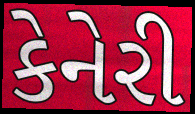
કેનેરી